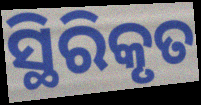
ସ୍ଥିରିକୃତ